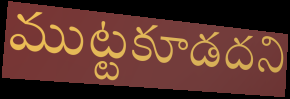
ముట్టకూడదని